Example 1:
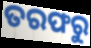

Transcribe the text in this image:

ତରଫରୁ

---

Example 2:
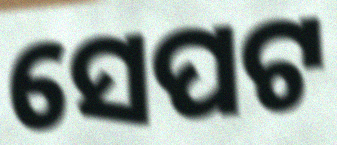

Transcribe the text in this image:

ସେପଟ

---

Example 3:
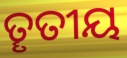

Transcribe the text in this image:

ତୄତୀୟ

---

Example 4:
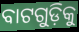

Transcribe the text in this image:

ବାଟଗୁଡ଼ିକୁ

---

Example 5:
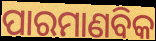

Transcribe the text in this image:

ପାରମାଣବିକ